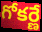
గోకర్ణే